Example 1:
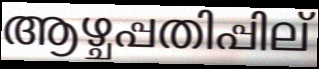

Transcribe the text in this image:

ആഴ്ചപ്പതിപ്പില്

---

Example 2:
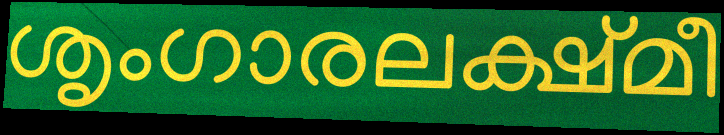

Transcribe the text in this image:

ശൃംഗാരലക്ഷ്മീ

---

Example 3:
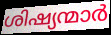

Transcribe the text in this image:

ശിഷ്യന്മാർ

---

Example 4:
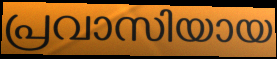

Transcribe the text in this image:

പ്രവാസിയായ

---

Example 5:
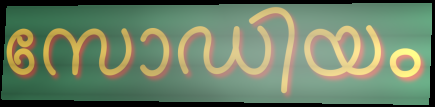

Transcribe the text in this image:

സോഡിയം